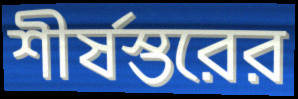
শীর্ষস্তরের